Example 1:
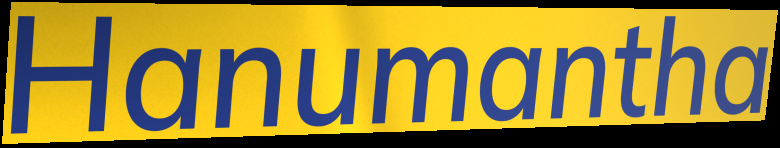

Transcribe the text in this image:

Hanumantha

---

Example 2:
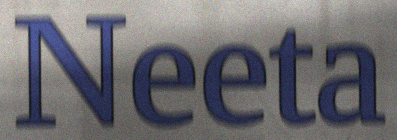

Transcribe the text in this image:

Neeta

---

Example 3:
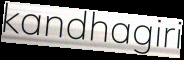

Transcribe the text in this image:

kandhagiri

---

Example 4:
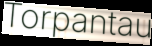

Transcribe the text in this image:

Torpantau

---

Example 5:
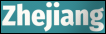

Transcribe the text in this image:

Zhejiang